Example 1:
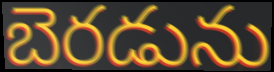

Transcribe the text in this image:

బెరడును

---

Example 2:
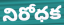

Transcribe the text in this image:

నిరోధక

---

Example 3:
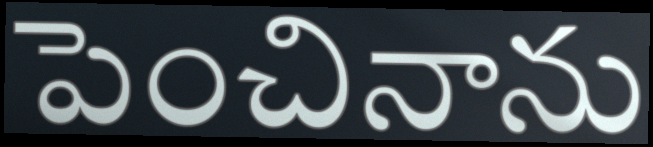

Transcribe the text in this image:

పెంచినాను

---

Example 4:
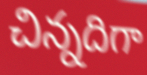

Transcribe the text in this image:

చిన్నదిగా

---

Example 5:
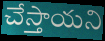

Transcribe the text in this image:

చేస్తాయని